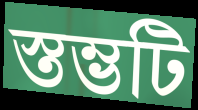
স্তম্ভটি